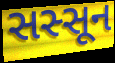
સસ્સૂન